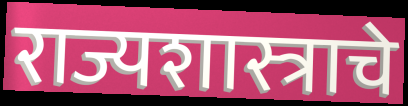
राज्यशास्त्राचे